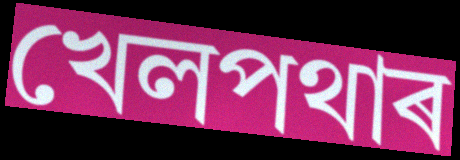
খেলপথাৰ